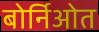
बोर्निओत